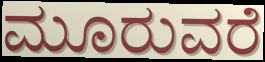
ಮೂರುವರೆ